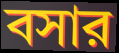
বসার